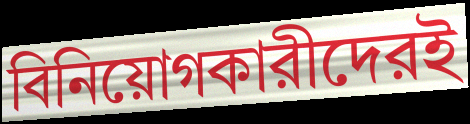
বিনিয়োগকারীদেরই